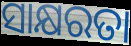
ସାକ୍ଷରତା